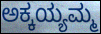
ಅಕ್ಕಯ್ಯಮ್ಮ